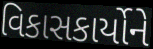
વિકાસકાર્યોને